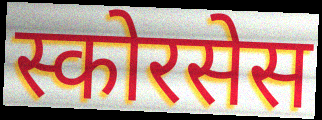
स्कोरसेस